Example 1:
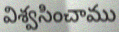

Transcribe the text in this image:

విశ్వసించాము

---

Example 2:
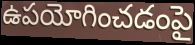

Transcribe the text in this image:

ఉపయోగించడంపై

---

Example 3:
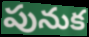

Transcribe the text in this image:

పునుక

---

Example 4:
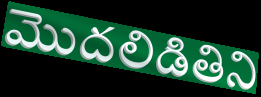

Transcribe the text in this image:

మొదలిడితిని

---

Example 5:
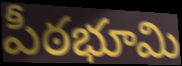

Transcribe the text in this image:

పీఠభూమి